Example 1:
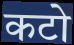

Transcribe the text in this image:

कटो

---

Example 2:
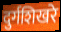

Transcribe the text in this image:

दुर्गशिखरे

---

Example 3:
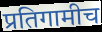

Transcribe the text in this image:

प्रतिगामीच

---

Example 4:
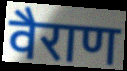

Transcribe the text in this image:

वैराण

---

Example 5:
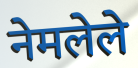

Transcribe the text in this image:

नेमलेले